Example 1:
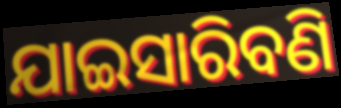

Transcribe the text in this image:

ଯାଇସାରିବଣି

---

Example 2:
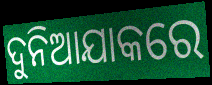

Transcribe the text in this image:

ଦୁନିଆଯାକରେ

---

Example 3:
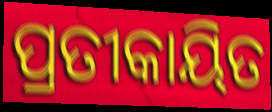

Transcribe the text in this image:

ପ୍ରତୀକାୟିତ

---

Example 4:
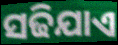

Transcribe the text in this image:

ସଢିଯାଏ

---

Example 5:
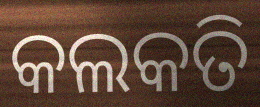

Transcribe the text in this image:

କଲକତି